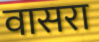
वासरा